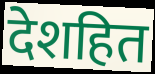
देशहित